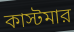
কাস্টমার